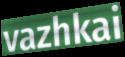
vazhkai